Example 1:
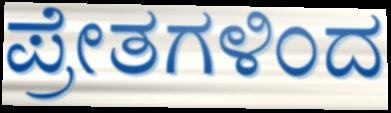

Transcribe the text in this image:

ಪ್ರೇತಗಳಿಂದ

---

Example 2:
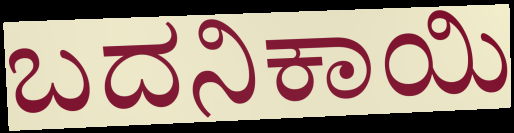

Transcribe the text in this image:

ಬದನಿಕಾಯಿ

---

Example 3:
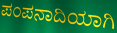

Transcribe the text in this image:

ಪಂಪನಾದಿಯಾಗಿ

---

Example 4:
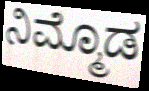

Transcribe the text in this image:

ನಿಮ್ಮೊಡ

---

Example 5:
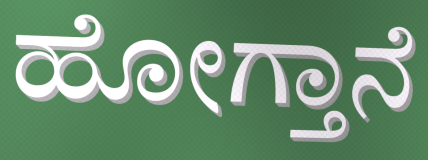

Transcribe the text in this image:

ಹೋಗ್ತಾನೆ